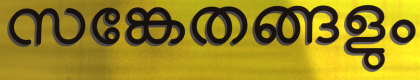
സങ്കേതങ്ങളും